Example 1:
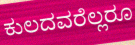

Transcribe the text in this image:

ಕುಲದವರೆಲ್ಲರೂ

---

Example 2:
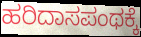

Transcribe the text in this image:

ಹರಿದಾಸಪಂಥಕ್ಕೆ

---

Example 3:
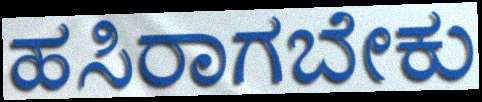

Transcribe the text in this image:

ಹಸಿರಾಗಬೇಕು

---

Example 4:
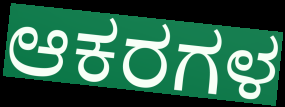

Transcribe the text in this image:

ಆಕರಗಳ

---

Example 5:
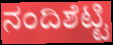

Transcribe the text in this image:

ನಂದಿಶೆಟ್ಟಿ